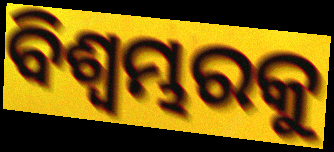
ବିଶ୍ୱମ୍ଭରକୁ